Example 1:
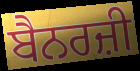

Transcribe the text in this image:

ਬੈਨਰਜ਼ੀ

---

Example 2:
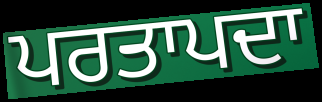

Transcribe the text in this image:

ਪਰਤਾਪਦਾ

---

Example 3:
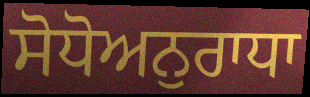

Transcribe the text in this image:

ਸੋਧੋਅਨੁਰਾਧਾ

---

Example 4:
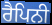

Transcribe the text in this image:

ਰੈਪਿਨੀ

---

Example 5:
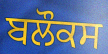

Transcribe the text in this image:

ਬਲੌਕਸ